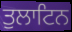
ਤੁਲਾਟਿਨ